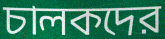
চালকদের